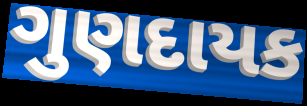
ગુણદાયક